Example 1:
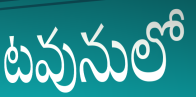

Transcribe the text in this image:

టవునులో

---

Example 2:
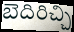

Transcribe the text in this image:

బెదిరిచ్చి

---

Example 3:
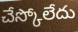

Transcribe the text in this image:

చేస్కోలేదు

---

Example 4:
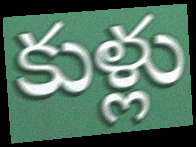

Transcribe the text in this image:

కుళ్లు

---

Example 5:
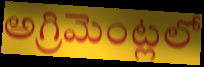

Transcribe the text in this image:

అగ్రిమెంట్లలో